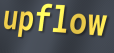
upflow